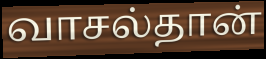
வாசல்தான்